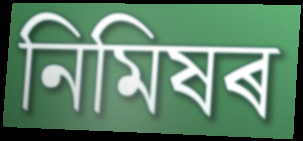
নিমিষৰ